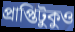
প্রাপ্তিটুকুও